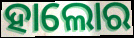
ହାଲୋର